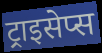
ट्राइसेप्स